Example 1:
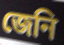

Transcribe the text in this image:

জেনি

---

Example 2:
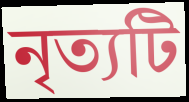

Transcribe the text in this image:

নৃত্যটি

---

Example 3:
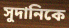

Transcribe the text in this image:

সুদানিকে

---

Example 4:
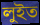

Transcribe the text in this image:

লুইত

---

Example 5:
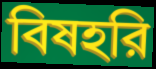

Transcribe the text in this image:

বিষহরি